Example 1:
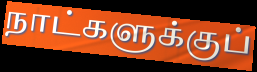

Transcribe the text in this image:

நாட்களுக்குப்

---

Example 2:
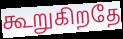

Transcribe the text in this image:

கூறுகிறதே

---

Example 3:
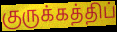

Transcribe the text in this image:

குருக்கத்திப்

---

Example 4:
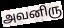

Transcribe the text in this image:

அவனிரு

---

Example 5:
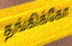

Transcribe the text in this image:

தங்கிக்கோ